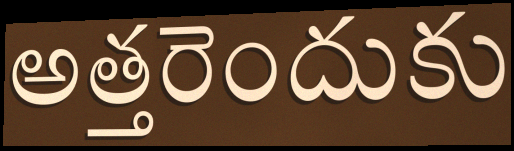
అత్తరెందుకు